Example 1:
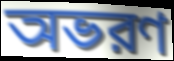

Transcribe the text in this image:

অভরণ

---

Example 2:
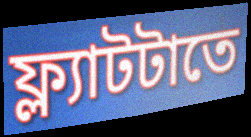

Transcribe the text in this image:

ফ্ল্যাটটাতে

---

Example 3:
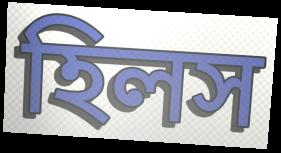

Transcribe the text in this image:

হিলস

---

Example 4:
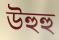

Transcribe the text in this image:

উহুহু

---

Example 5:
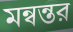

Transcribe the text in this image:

মন্বন্তর